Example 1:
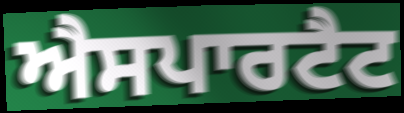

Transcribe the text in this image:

ਐਸਪਾਰਟੈਟ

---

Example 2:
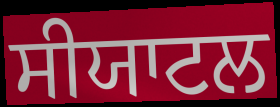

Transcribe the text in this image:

ਸੀਯਾਟਲ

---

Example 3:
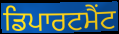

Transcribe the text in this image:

ਡਿਪਾਰਟਮੈਂਟ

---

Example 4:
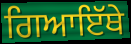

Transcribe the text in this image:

ਗਿਆਇੱਥੇ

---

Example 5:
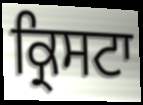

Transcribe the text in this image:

ਕ੍ਰਿਸਟਾ